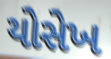
યોસેખ